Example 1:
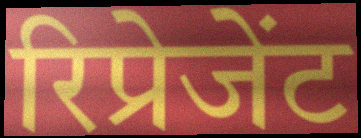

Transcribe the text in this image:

रिप्रेजेंट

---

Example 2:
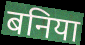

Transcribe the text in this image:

बनिया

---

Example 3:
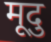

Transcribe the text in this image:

मूदु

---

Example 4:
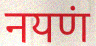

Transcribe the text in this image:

नयणं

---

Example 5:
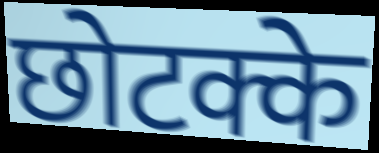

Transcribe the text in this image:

छोटक्के